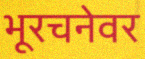
भूरचनेवर